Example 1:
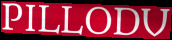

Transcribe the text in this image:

PILLODU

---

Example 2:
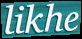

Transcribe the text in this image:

likhe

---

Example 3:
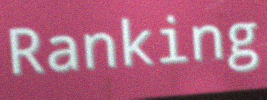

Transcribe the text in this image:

Ranking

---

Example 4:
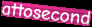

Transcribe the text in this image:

attosecond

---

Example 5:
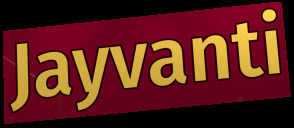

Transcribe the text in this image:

Jayvanti